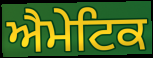
ਐਮੇਟਿਕ